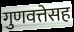
गुणवत्तेसह